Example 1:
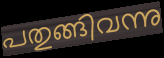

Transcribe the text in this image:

പതുങ്ങിവന്നു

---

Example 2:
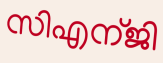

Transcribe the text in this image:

സിഎന്ജി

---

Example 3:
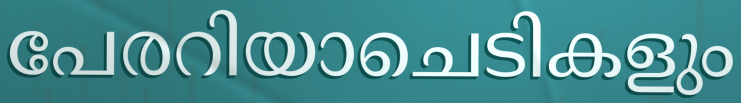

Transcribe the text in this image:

പേരറിയാചെടികളും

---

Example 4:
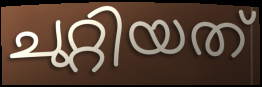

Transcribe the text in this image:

ചുറ്റിയത്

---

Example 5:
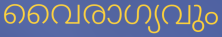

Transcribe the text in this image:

വൈരാഗ്യവും